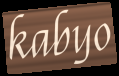
kabyo